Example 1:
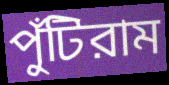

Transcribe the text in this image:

পুঁটিরাম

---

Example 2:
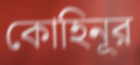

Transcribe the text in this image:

কোহিনূর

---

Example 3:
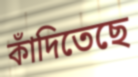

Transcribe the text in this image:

কাঁদিতেছে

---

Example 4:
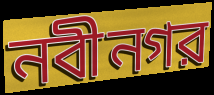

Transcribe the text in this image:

নবীনগর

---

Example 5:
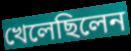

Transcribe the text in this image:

খেলেছিলেন